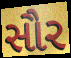
સૌર